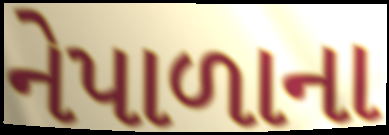
નેપાળાના